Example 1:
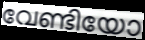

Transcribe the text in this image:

വേണ്ടിയോ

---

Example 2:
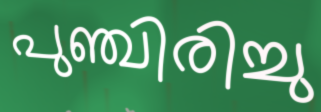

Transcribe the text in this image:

പുഞ്ചിരിച്ചു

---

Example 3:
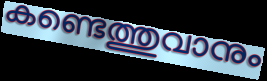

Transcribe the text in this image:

കണ്ടെത്തുവാനും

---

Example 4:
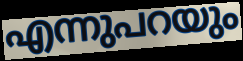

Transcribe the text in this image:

എന്നുപറയും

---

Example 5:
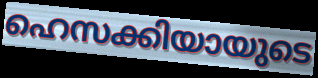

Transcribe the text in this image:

ഹെസക്കിയായുടെ